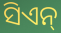
ସିଏନ୍